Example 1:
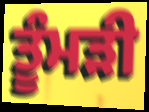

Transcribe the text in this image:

ਤੂੰਮੜੀ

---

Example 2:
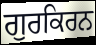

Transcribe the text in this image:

ਗੁਰਕਿਰਨ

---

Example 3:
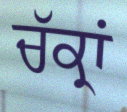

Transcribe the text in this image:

ਚੱਕ੍ਰਾਂ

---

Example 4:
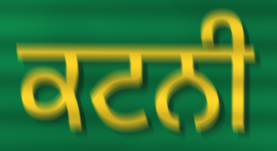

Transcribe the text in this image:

ਕਟਨੀ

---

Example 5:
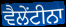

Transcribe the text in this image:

ਵੈਲੇਂਟੀਨਾ